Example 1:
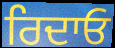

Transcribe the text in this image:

ਰਿਦਾਓ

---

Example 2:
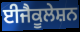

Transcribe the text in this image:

ਈਜੈਕੂਲੇਸ਼ਨ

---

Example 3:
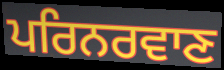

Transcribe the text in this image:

ਪਰਿਨਰਵਾਣ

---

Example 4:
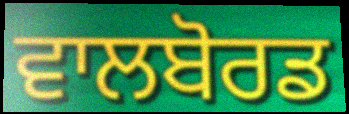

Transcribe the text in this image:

ਵਾਲਬੋਰਡ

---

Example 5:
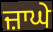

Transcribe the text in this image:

ਜ਼ਾਘੇ